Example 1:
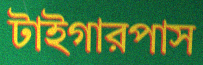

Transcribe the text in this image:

টাইগারপাস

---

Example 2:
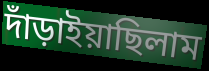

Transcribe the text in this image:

দাঁড়াইয়াছিলাম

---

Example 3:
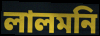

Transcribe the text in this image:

লালমনি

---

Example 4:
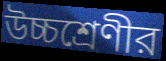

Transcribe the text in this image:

উচ্চশ্রেণীর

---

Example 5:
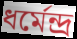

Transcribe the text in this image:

ধর্মেন্দ্র